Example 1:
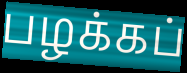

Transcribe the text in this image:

பழக்கப்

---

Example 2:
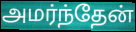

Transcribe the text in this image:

அமர்ந்தேன்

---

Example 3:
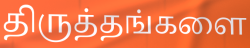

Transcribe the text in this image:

திருத்தங்களை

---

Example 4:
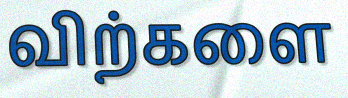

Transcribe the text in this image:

விற்களை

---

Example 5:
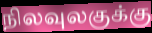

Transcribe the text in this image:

நிலவுலகுக்கு